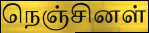
நெஞ்சினள்